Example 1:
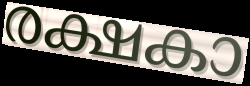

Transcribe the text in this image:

രക്ഷകാ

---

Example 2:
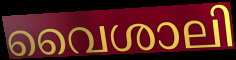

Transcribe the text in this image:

വൈശാലി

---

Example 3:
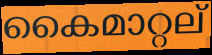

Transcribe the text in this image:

കൈമാറ്റല്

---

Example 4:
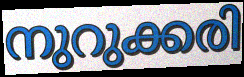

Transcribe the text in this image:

നുറുക്കരി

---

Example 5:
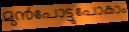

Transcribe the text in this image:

മുൻപോട്ടുപോകാം